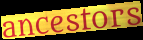
ancestors